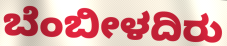
ಬೆಂಬೀಳದಿರು